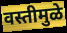
वस्तीमुळे